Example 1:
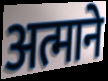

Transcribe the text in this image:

अत्माने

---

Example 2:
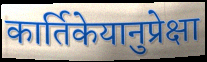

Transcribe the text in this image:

कार्तिकेयानुप्रेक्षा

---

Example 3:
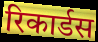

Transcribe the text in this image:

रिकार्डस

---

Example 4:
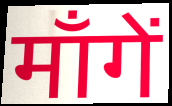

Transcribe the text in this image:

माँगें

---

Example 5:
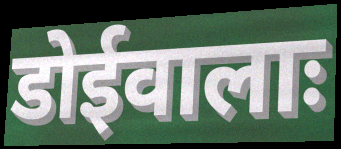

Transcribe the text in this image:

डोईवालाः